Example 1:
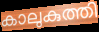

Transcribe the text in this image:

കാലുകുത്തി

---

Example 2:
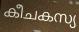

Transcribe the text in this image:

കീചകസ്യ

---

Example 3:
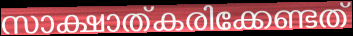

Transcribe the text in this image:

സാക്ഷാത്കരിക്കേണ്ടത്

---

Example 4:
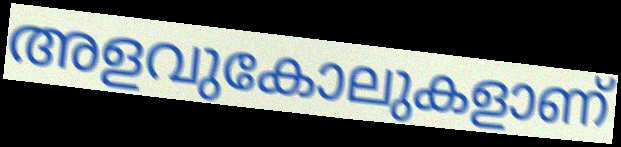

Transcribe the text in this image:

അളവുകോലുകളാണ്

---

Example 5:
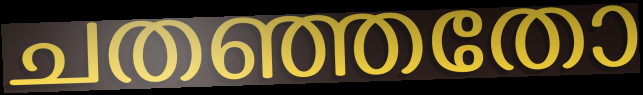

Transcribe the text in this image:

ചതഞ്ഞതോ